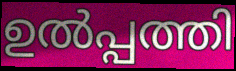
ഉൽപ്പത്തി